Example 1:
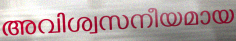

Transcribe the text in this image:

അവിശ്വസനീയമായ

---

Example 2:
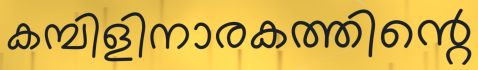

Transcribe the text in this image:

കമ്പിളിനാരകത്തിന്റെ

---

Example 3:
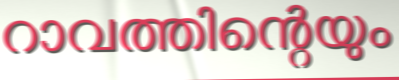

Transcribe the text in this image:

റാവത്തിന്റെയും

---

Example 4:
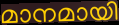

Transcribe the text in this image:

മാനമായി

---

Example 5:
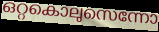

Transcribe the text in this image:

ഒറ്റകൊലുസെന്നോ